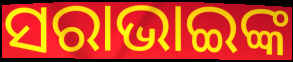
ସରାଭାଇଙ୍କ